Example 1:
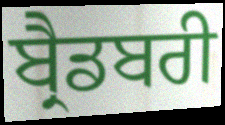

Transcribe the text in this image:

ਬ੍ਰੈਡਬਰੀ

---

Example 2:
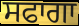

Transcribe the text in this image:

ਸਫਾਗਾ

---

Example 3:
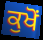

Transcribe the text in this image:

ਕੁਖੋਂ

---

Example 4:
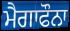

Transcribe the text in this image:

ਮੈਗਾਫੌਨਾ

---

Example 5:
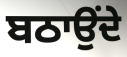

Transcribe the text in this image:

ਬਠਾਉਂਦੇ